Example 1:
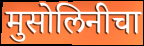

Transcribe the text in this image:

मुसोलिनीचा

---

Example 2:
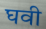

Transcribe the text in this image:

घवी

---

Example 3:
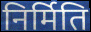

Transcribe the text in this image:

निर्मिति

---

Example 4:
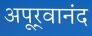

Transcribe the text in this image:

अपूर्वानंद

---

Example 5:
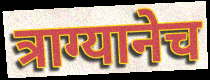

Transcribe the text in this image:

त्राग्यानेच